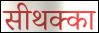
सीथक्का